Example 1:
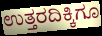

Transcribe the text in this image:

ಉತ್ತರದಿಕ್ಕಿಗೂ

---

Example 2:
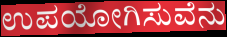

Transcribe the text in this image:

ಉಪಯೋಗಿಸುವೆನು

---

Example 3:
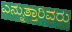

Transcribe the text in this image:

ಎನ್ನುತ್ತಾರಿವರು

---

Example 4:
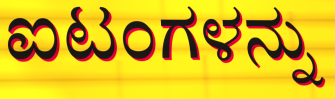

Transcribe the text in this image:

ಐಟಂಗಳನ್ನು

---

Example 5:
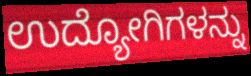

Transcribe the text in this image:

ಉದ್ಯೋಗಿಗಳನ್ನು